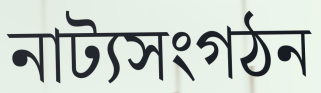
নাট্যসংগঠন